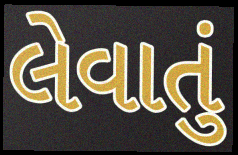
લેવાતું